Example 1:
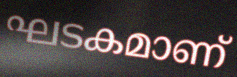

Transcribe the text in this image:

ഘടകമാണ്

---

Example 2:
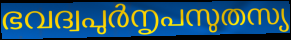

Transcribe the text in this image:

ഭവദ്വപുർനൃപസുതസ്യ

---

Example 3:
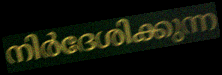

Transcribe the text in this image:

നിർദേശിക്കുന്ന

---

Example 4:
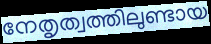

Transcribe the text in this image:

നേതൃത്വത്തിലുണ്ടായ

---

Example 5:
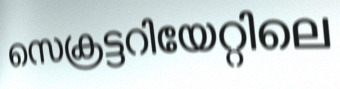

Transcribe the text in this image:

സെക്രട്ടറിയേറ്റിലെ